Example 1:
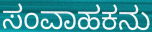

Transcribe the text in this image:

ಸಂವಾಹಕನು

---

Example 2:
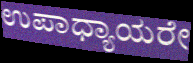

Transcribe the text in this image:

ಉಪಾಧ್ಯಾಯರೇ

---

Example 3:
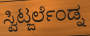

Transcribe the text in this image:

ಸ್ವಿಟ್ಜರ್ಲೆಂಡ್ನ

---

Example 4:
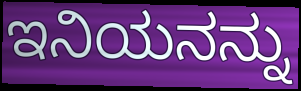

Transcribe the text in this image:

ಇನಿಯನನ್ನು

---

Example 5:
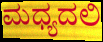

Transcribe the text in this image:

ಮಧ್ಯದಲಿ